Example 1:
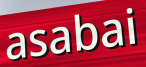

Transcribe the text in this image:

asabai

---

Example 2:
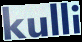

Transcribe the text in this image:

kulli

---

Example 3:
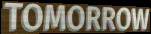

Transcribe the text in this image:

TOMORROW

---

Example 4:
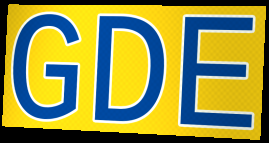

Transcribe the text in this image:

GDE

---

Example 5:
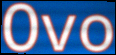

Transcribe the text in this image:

Ovo